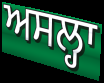
ਅਸਲ੍ਹਾ